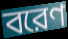
বরেণ